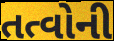
તત્વોની